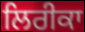
ਲਿਰੀਕਾ